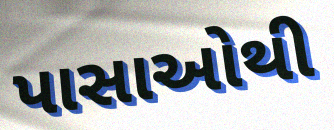
પાસાઓથી